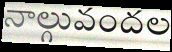
నాల్గువందల